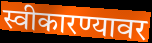
स्वीकारण्यावर